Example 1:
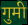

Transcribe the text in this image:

गुमी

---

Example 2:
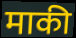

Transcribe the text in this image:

माकी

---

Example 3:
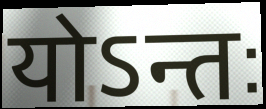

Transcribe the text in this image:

योऽन्तः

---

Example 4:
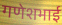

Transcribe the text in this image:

गणेशभाई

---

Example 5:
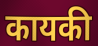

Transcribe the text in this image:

कायकी